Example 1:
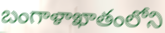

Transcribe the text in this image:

బంగాళాఖాతంలోని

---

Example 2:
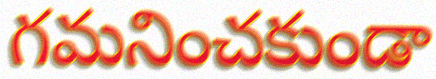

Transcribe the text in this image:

గమనించకుండా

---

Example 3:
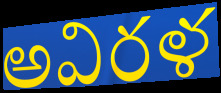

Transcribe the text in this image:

అవిరళ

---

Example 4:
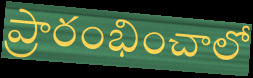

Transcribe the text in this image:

ప్రారంభించాలో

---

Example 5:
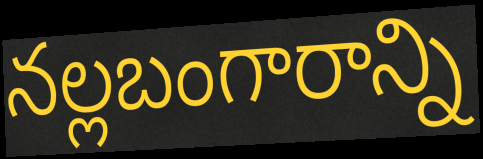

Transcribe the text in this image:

నల్లబంగారాన్ని